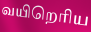
வயிறெரிய